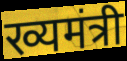
ख्यमंत्री